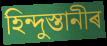
হিন্দুস্তানীৰ